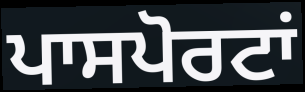
ਪਾਸਪੋਰਟਾਂ